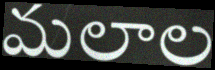
మలాల